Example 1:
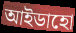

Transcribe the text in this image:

আইডাহো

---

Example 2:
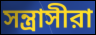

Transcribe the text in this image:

সন্ত্রাসীরা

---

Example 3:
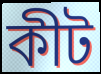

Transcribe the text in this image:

কীট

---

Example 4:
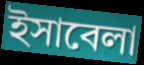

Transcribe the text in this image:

ইসাবেলা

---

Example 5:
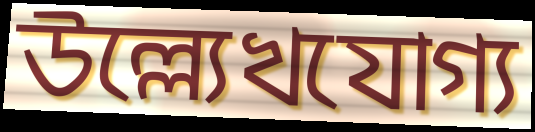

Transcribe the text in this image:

উল্ল্যেখযোগ্য